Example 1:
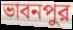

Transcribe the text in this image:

ভাবনপুর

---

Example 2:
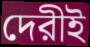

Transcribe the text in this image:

দেরীই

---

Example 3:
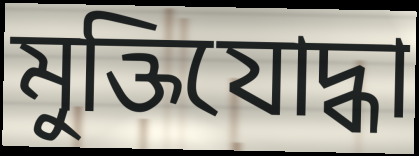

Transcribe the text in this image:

মুক্তিযোদ্ধা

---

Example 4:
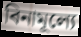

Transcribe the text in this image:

বিনামূল্যে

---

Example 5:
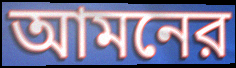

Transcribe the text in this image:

আমনের